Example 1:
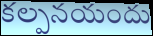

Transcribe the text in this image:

కల్పనయందు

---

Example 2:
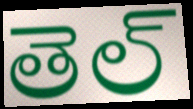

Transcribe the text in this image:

తెల్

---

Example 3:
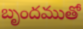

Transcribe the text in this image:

బృందముతో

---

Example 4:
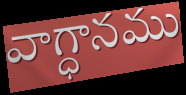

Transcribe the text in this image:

వాగ్ధానము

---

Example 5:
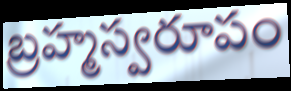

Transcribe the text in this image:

బ్రహ్మస్వరూపం